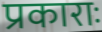
प्रकाराः